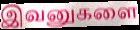
இவனுகளை